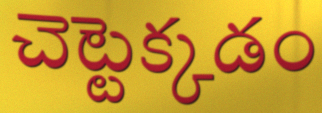
చెట్టెక్కడం